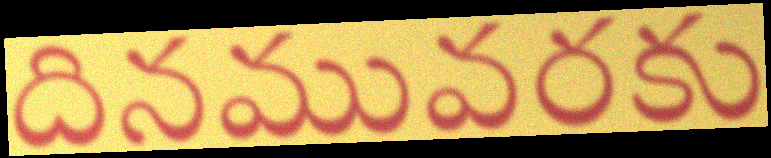
దినమువరకు